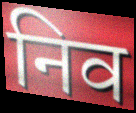
निव